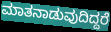
ಮಾತನಾಡುವುದಿದ್ದರೆ